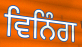
ਵਿਨਿੰਗ